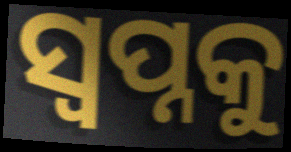
ସ୍ଵପ୍ନକୁ